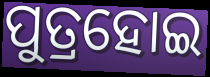
ପୁତ୍ରହୋଇ